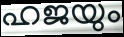
ഹജയും